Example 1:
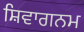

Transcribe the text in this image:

ਸ਼ਿਵਾਗਨਮ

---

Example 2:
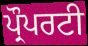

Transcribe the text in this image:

ਪ੍ਰੌਪਰਟੀ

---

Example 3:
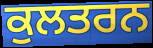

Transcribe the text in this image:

ਕੁਲਤਰਨ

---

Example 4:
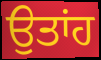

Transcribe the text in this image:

ਉਤਾਂਹ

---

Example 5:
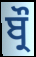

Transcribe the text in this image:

ਬ੍ਰੌ